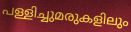
പള്ളിച്ചുമരുകളിലും